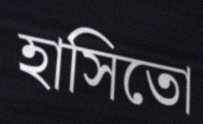
হাসিতো